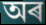
অৰ